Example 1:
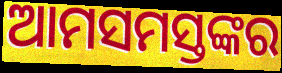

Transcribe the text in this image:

ଆମସମସ୍ତଙ୍କର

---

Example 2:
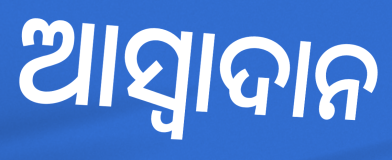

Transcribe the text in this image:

ଆସ୍ୱାଦାନ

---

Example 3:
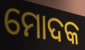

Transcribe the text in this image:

ମୋଦକ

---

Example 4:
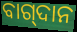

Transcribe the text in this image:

ବାଗ୍‍ଦାନ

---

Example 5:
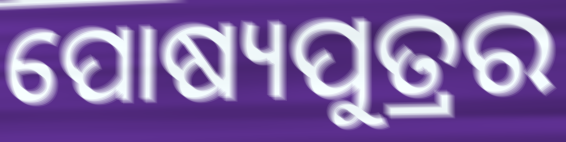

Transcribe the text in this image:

ପୋଷ୍ୟପୁତ୍ରର